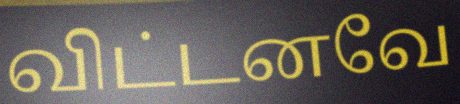
விட்டனவே